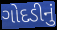
ગોદડીનું